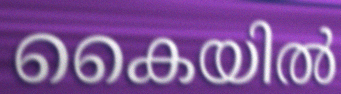
കൈയിൽ